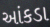
આંકડા